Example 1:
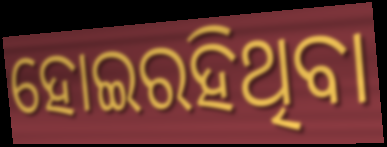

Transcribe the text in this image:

ହୋଇରହିଥିବା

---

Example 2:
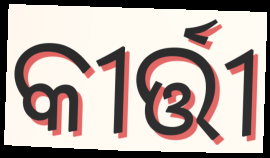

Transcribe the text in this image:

କୀର୍ତ୍ତୀ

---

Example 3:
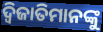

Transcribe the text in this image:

ଦ୍ୱିଜାତିମାନଙ୍କୁ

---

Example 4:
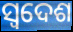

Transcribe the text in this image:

ସ୍ୱଦେଶ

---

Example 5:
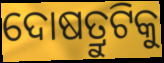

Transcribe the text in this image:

ଦୋଷତ୍ରୁଟିକୁ